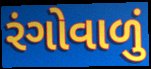
રંગોવાળું